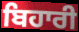
ਬਿਹਾਰੀ